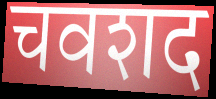
चवशद